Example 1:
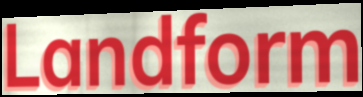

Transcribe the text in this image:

Landform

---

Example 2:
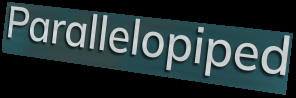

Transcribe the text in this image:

Parallelopiped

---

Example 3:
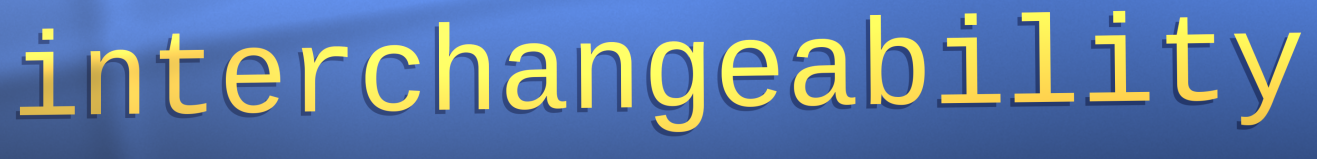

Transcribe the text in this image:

interchangeability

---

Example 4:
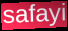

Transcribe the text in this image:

safayi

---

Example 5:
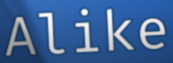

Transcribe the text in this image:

Alike